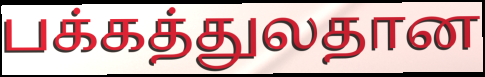
பக்கத்துலதான